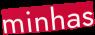
minhas